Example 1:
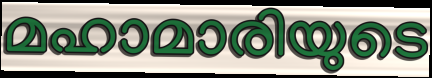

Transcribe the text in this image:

മഹാമാരിയുടെ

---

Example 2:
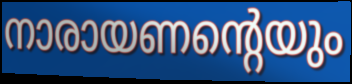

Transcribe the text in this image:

നാരായണന്റെയും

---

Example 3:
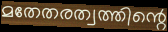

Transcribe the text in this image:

മതേതരത്വത്തിന്റെ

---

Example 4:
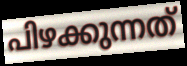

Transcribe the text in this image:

പിഴക്കുന്നത്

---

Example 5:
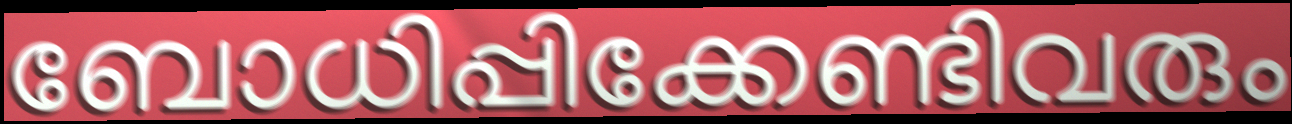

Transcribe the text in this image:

ബോധിപ്പിക്കേണ്ടിവരും